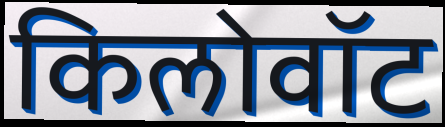
किलोवॉट